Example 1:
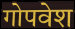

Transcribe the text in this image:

गोपवेश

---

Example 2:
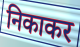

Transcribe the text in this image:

निकाकर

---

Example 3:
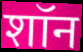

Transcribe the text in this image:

शॉन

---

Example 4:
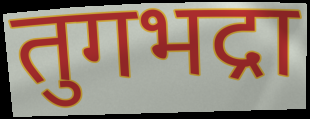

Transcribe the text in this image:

तुगभद्रा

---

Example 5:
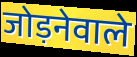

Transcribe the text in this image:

जोड़नेवाले